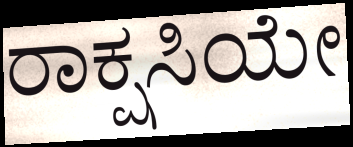
ರಾಕ್ಷಸಿಯೇ